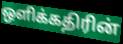
ஒளிக்கதிரின்